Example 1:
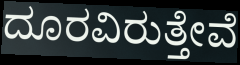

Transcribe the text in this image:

ದೂರವಿರುತ್ತೇವೆ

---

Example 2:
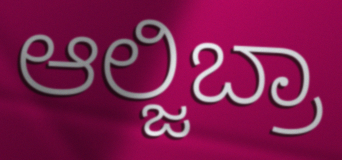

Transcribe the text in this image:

ಆಲ್ಜಿಬ್ರಾ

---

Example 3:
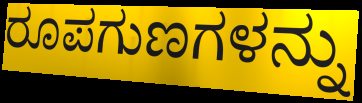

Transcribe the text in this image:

ರೂಪಗುಣಗಳನ್ನು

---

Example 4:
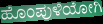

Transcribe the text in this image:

ಹೊಂಪುಳಿಯೋಗಿ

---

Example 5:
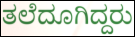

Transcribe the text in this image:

ತಲೆದೂಗಿದ್ದರು